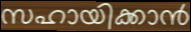
സഹായിക്കാൻ